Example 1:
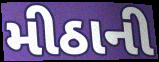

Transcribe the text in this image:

મીઠાની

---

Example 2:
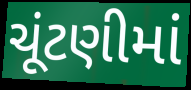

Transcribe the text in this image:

ચૂંટણીમાં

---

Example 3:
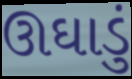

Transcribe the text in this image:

ઊઘાડું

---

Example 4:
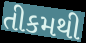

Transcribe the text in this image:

તીકમથી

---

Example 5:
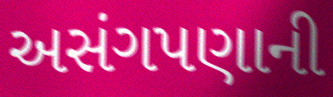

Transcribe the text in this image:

અસંગપણાની